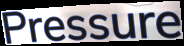
Pressure